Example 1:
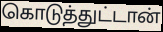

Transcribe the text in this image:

கொடுத்துட்டான்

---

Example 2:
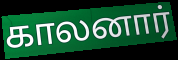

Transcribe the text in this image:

காலனார்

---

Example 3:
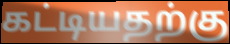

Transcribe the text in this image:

கட்டியதற்கு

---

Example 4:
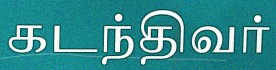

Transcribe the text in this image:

கடந்திவர்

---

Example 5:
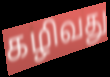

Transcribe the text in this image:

கழிவது